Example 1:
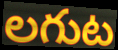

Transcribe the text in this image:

లగుట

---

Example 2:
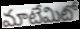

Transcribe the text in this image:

మాటేమిటో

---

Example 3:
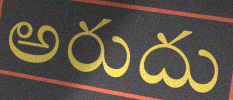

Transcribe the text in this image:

అరుదు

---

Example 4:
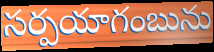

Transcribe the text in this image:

సర్పయాగంబును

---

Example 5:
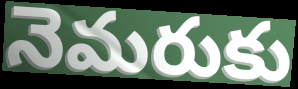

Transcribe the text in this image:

నెమరుకు